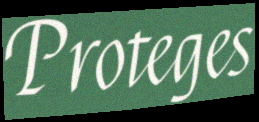
Proteges